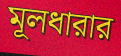
মূলধারার